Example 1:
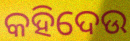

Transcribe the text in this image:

କହିଦେଉ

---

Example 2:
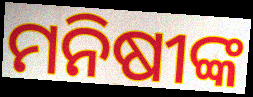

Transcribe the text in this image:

ମନିଷୀଙ୍କ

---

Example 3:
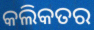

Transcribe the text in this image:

କଲିକତର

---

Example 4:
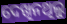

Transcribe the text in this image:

ଦେଖିନଥିଲୁ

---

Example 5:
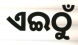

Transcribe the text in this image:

ଏଇଠୁଁ